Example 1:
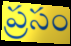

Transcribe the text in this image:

ప్రసం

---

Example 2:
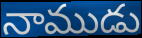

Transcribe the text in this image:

నాముడు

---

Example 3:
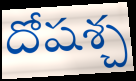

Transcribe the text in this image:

దోషశ్చ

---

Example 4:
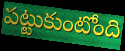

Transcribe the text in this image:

పట్టుకుంటోంది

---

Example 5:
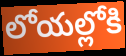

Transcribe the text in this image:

లోయల్లోకి